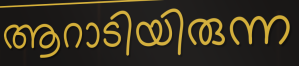
ആറാടിയിരുന്ന